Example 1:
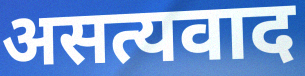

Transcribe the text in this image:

असत्यवाद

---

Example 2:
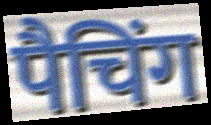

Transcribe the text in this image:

पैचिंग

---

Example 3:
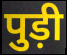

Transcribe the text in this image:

पुड़ी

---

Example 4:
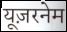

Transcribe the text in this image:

यूज़रनेम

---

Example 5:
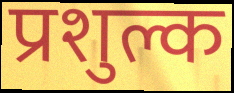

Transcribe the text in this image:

प्रशुल्क